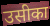
उसीका